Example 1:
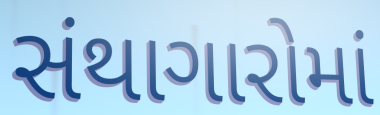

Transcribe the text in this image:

સંથાગારોમાં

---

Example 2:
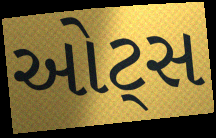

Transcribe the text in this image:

ઓટ્સ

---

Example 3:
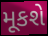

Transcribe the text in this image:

મૂકશે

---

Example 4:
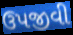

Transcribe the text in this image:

ઉપજીવી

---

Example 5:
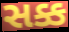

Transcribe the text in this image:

સક્ક